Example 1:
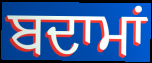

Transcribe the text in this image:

ਬਦਾਮਾਂ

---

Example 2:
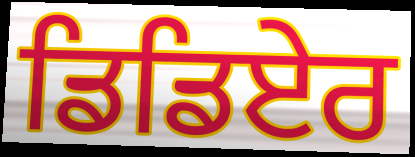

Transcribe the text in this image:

ਡਿਡਿਏਰ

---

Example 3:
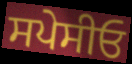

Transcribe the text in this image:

ਸਪੇਸੀਓ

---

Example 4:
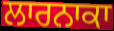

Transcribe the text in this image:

ਲਾਰਨਾਕਾ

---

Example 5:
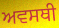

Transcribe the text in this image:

ਅਵਸਥੀ